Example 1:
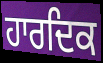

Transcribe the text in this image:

ਹਾਰਦਿਕ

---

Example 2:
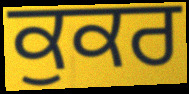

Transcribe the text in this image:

ਕੁਕਰ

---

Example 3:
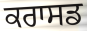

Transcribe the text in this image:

ਕਰਾਸਡ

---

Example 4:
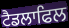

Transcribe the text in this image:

ਟੈਡਲਾਫਿਲ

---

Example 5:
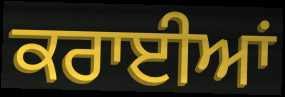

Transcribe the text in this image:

ਕਰਾਈਆਂ